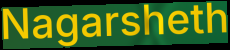
Nagarsheth